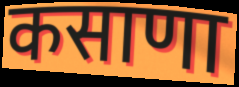
कसाणा